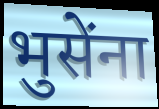
भुसेंना